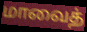
மாவைத்